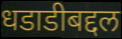
धडाडीबद्दल